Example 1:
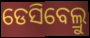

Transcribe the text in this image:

ଡେସିବେଲ୍ରୁ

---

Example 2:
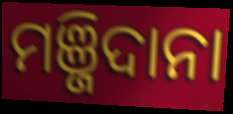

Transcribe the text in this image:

ମଞ୍ଜିଦାନା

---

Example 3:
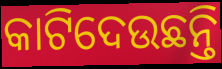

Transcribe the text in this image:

କାଟିଦେଉଛନ୍ତି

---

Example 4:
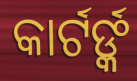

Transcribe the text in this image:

କାର୍ଟର୍ଙ୍କ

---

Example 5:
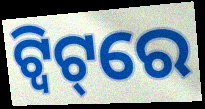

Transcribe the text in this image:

ଟ୍ବିଟ୍‌ରେ